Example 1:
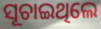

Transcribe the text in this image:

ସୂଚାଇଥିଲେ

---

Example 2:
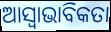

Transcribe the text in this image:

ଆସ୍ବାଭାବିକତା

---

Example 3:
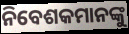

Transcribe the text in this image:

ନିବେଶକମାନଙ୍କୁ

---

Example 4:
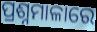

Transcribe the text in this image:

ପ୍ରଶ୍ନମାଳାରେ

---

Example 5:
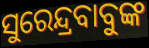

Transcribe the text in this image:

ସୁରେନ୍ଦ୍ରବାବୁଙ୍କ